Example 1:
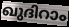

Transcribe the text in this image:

ഖുദിറാം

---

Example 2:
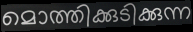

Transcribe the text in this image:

മൊത്തിക്കുടിക്കുന്ന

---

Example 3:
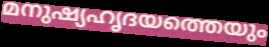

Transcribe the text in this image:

മനുഷ്യഹൃദയത്തെയും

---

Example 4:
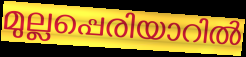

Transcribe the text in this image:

മുല്ലപ്പെരിയാറിൽ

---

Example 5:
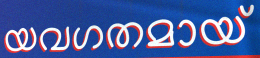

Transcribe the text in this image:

യവഗതമായ്